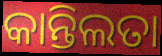
କାନ୍ତିଲତା